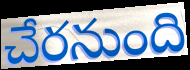
చేరనుంది